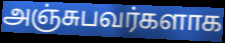
அஞ்சுபவர்களாக